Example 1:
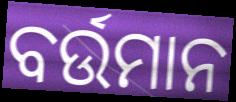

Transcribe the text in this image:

ବର୍ଉମାନ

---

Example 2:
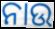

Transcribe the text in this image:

ନାଉ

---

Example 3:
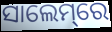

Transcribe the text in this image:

ସାଲେମ୍‌ରେ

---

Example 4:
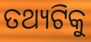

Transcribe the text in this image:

ତଥ୍ୟଟିକୁ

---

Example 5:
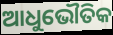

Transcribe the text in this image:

ଆଧୁଭୌତିକ